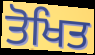
ਤੋਖਿਤ